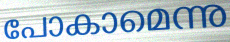
പോകാമെന്നു